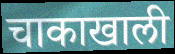
चाकाखाली